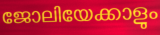
ജോലിയേക്കാളും